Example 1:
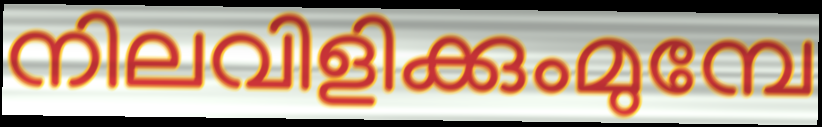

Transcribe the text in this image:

നിലവിളിക്കുംമുമ്പേ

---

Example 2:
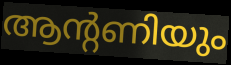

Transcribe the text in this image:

ആന്റണിയും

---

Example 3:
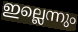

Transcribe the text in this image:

ഇല്ലെന്നും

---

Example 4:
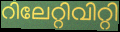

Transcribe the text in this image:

റിലേറ്റിവിറ്റി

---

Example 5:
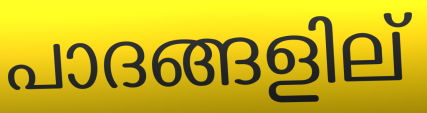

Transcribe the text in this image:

പാദങ്ങളില്